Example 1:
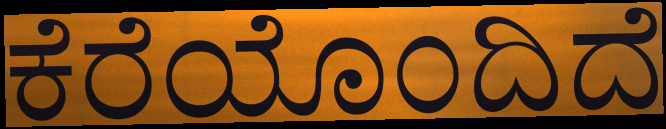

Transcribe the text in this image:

ಕೆರೆಯೊಂದಿದೆ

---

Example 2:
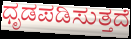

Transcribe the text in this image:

ಧೃಡಪಡಿಸುತ್ತದೆ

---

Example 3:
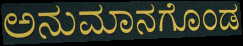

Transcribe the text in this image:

ಅನುಮಾನಗೊಂಡ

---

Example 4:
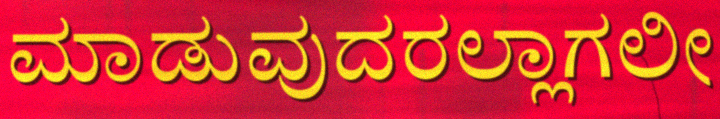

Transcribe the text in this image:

ಮಾಡುವುದರಲ್ಲಾಗಲೀ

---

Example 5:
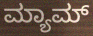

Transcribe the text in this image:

ಮ್ಯಾಮ್